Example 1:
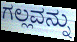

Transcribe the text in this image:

ಗಲ್ಲವನ್ನು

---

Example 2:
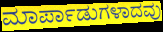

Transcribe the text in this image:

ಮಾರ್ಪಾಡುಗಳಾದವು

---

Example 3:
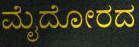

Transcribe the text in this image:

ಮೈದೋರದ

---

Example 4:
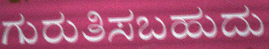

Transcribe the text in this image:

ಗುರುತಿಸಬಹುದು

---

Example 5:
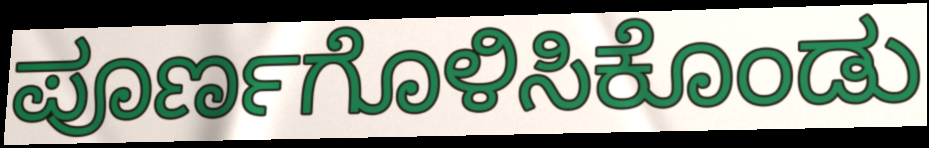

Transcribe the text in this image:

ಪೂರ್ಣಗೊಳಿಸಿಕೊಂಡು